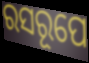
ରସରୂପେ